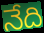
నేది